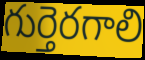
గుర్తెరగాలి